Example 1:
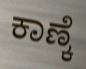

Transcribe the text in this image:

ಕಾಣ್ಕೆ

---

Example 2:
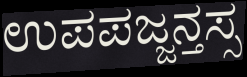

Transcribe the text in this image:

ಉಪಪಜ್ಜನ್ತಸ್ಸ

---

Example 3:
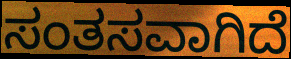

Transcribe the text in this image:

ಸಂತಸವಾಗಿದೆ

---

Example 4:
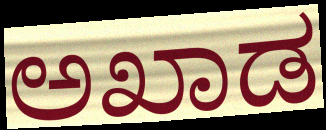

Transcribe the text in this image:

ಅಖಾಡ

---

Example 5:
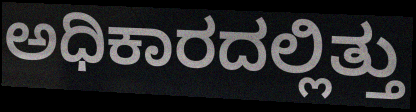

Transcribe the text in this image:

ಅಧಿಕಾರದಲ್ಲಿತ್ತು